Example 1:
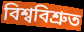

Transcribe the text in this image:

বিশ্ববিশ্ৰুত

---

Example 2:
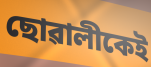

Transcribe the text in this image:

ছোৱালীকেই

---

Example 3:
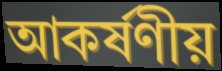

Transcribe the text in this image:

আকৰ্ষণীয়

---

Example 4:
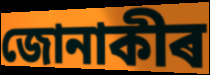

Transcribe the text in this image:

জোনাকীৰ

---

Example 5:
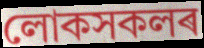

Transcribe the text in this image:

লোকসকলৰ